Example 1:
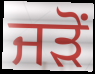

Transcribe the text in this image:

ਜਡ਼ੋਂ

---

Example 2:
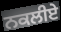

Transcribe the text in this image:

ਨਕਲੀਏ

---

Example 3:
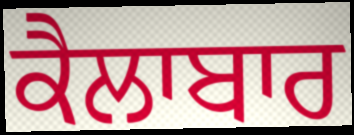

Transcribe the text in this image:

ਕੈਲਾਬਾਰ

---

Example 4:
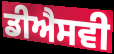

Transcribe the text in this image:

ਡੀਐਸਵੀ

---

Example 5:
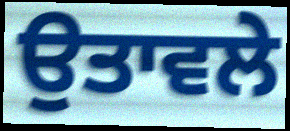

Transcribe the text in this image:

ਉਤਾਵਲੇ